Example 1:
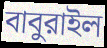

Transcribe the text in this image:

বাবুরাইল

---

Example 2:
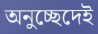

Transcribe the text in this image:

অনুচ্ছেদেই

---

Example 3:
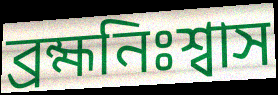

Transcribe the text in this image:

ব্রহ্মনিঃশ্বাস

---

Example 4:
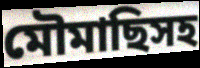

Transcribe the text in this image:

মৌমাছিসহ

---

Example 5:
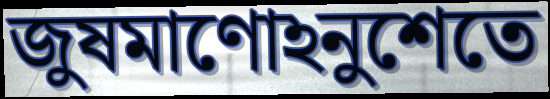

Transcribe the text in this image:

জুষমাণোঽনুশেতে